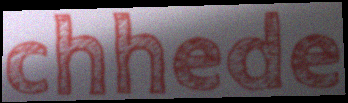
chhede